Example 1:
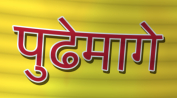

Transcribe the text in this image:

पुढेमागे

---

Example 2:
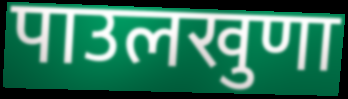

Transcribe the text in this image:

पाउलखुणा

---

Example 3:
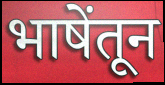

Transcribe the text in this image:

भाषेंतून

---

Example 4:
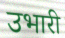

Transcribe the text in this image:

उभारी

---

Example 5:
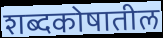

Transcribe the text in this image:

शब्दकोषातील